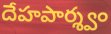
దేహపార్శ్వం